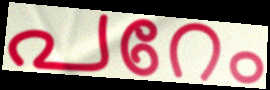
പറേം